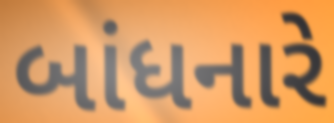
બાંધનારે